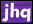
jhq